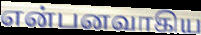
என்பனவாகிய